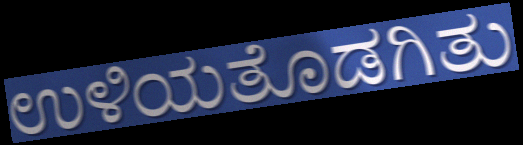
ಉಳಿಯತೊಡಗಿತು